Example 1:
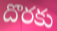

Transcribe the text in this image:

దొరకు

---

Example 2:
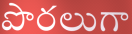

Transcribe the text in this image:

పొరలుగా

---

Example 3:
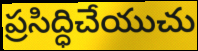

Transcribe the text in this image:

ప్రసిద్ధిచేయుచు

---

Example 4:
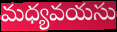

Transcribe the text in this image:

మధ్యవయసు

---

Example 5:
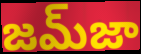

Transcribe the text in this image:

జమ్‌జా